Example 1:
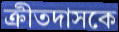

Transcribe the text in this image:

ক্রীতদাসকে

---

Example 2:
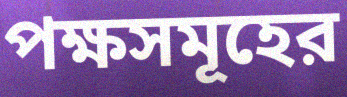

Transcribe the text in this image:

পক্ষসমূহের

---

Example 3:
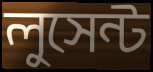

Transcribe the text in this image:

লুসেন্ট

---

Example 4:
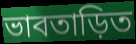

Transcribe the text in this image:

ভাবতাড়িত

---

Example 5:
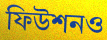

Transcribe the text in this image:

ফিউশনও